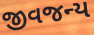
જીવજન્ય